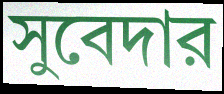
সুবেদার